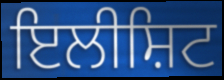
ਇਲੀਸ਼ਿਟ